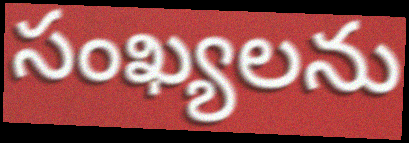
సంఖ్యలను